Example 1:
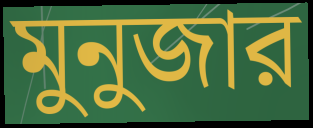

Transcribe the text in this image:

মুনুজার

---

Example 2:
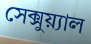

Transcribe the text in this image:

সেক্সুয়্যাল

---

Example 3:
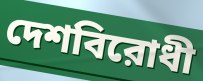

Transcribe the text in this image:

দেশবিরোধী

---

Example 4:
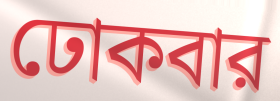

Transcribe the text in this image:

ঢোকবার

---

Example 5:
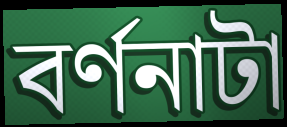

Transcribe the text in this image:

বর্ণনাটা